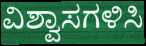
ವಿಶ್ವಾಸಗಳಿಸಿ